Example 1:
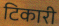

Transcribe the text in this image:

टिकारी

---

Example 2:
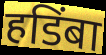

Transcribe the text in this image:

हडिंबा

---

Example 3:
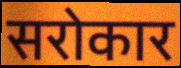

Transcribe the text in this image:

सरोकार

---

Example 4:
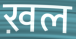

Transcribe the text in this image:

ख़ल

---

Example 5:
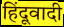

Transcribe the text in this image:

हिंदूवादी